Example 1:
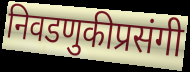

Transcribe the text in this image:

निवडणुकीप्रसंगी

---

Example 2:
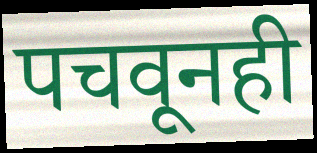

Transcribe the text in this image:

पचवूनही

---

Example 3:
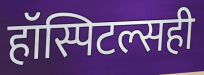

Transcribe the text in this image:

हॉस्पिटल्सही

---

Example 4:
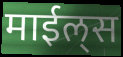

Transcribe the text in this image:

माईल्स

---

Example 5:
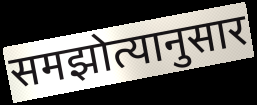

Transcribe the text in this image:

समझोत्यानुसार